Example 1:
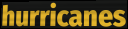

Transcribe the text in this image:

hurricanes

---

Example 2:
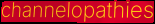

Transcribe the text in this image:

channelopathies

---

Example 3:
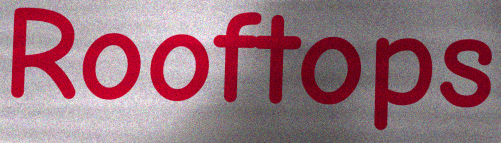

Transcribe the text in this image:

Rooftops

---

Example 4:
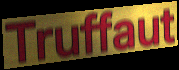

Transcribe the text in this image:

Truffaut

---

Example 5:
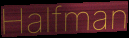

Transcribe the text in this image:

Halfman